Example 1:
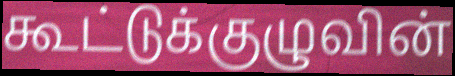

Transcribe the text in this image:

கூட்டுக்குழுவின்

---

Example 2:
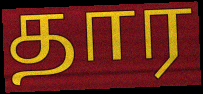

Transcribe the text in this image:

தார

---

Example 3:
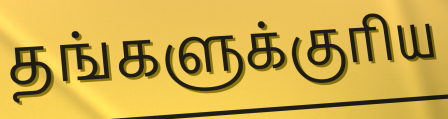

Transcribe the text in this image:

தங்களுக்குரிய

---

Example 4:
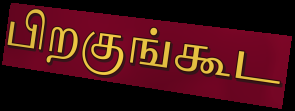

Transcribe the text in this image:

பிறகுங்கூட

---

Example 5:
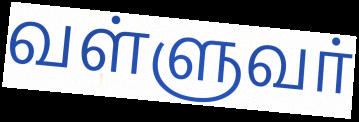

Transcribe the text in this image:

வள்ளுவர்